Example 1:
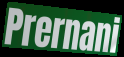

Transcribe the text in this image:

Prernani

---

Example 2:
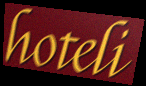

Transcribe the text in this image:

hoteli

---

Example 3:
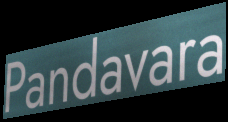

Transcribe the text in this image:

Pandavara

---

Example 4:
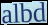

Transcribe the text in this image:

albd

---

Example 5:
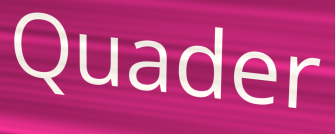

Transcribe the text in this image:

Quader